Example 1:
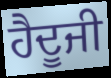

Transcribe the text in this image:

ਹੈਦੂਜੀ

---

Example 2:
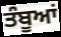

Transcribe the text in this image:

ਤੰਬੂਆਂ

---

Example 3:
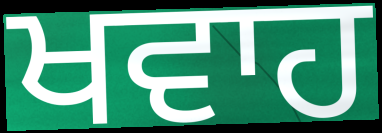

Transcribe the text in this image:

ਖਵਾਹ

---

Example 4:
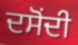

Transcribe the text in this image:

ਦਸੋਂਦੀ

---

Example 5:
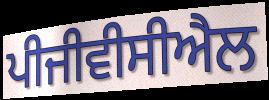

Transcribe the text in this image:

ਪੀਜੀਵੀਸੀਐਲ